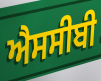
ਐਸਸੀਬੀ